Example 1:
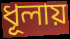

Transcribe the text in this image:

ধূলায়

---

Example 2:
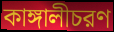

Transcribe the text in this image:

কাঙ্গালীচরণ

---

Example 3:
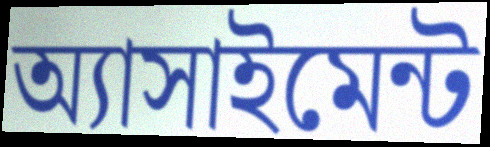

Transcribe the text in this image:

অ্যাসাইমেন্ট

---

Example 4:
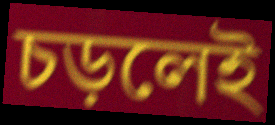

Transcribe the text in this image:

চড়লেই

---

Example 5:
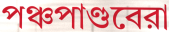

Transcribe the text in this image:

পঞ্চপাণ্ডবেরা